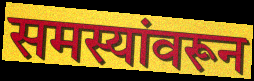
समस्यांवरून